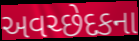
અવચ્છેદકના